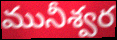
మునీశ్వర